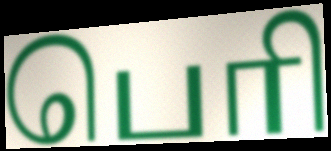
பெரி